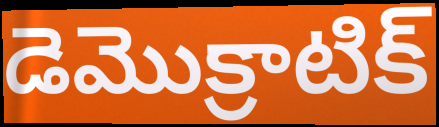
డెమొక్రాటిక్